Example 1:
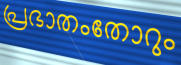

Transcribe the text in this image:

പ്രഭാതംതോറും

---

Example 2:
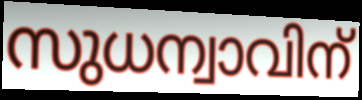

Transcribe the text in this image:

സുധന്വാവിന്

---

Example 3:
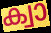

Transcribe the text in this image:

ക്വാ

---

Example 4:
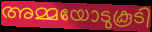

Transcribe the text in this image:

അമ്മയോടുകൂടി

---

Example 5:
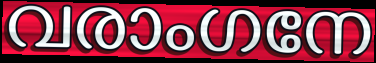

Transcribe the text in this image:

വരാംഗനേ